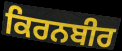
ਕਿਰਨਬੀਰ